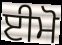
ਈਮੋ